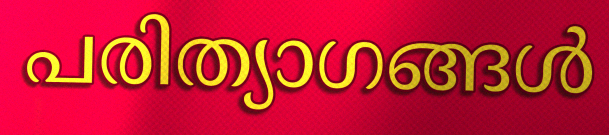
പരിത്യാഗങ്ങൾ